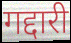
गद्दारी